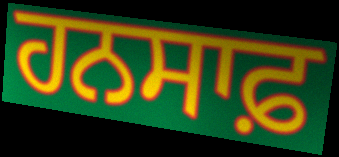
ਹਨਸਾਫ਼